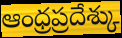
ఆంధ్రప్రదేశ్కు